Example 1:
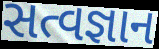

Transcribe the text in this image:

સત્વજ્ઞાન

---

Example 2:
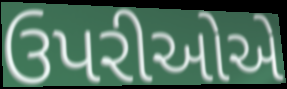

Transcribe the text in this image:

ઉપરીઓએ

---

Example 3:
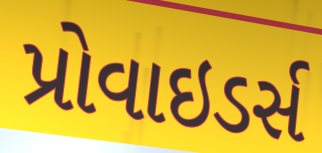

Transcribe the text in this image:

પ્રોવાઇડર્સ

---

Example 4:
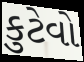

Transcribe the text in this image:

કુટેવો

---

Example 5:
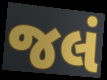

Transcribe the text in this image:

જલં